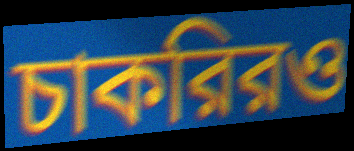
চাকরিরও